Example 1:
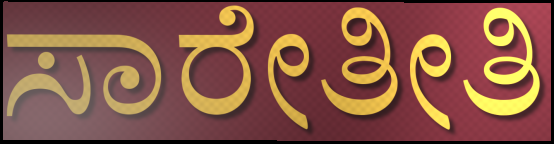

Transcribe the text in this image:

ಸಾರೇತೀತಿ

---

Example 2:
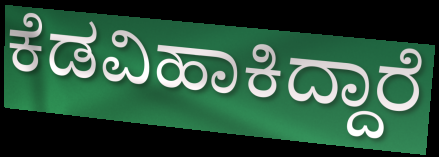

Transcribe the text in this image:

ಕೆಡವಿಹಾಕಿದ್ದಾರೆ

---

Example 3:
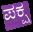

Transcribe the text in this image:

ಪಕ್ಷ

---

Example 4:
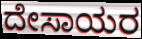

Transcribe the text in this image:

ದೇಸಾಯರ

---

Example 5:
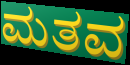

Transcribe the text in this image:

ಮತವ